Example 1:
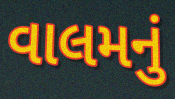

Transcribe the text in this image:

વાલમનું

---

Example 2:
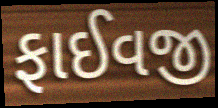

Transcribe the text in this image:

ફાઈવજી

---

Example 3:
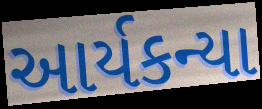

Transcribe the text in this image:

આર્યકન્યા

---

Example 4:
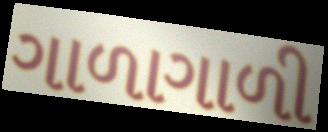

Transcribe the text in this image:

ગાળાગાળી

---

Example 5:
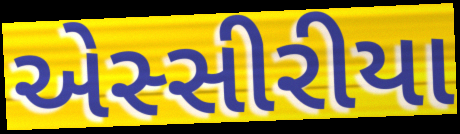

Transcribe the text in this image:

એસ્સીરીયા